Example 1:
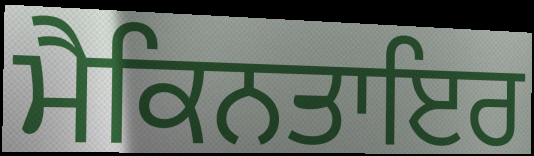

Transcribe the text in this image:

ਮੈਕਿਨਤਾਇਰ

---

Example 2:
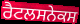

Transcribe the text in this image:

ਰੈਟਲਸਨੇਕਸ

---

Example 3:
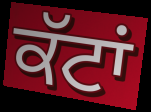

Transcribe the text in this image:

ਕੱਟਾਂ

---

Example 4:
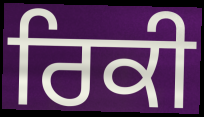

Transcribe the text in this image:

ਰਿਕੀ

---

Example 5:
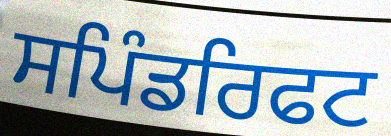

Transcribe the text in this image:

ਸਪਿੰਡਰਿਫਟ